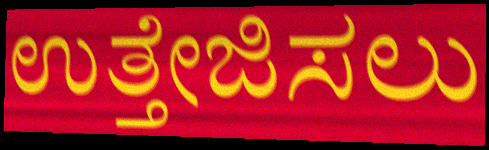
ಉತ್ತೇಜಿಸಲು